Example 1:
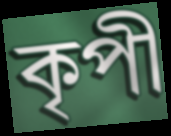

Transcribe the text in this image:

কৃপী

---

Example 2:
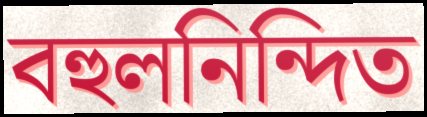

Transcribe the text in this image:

বহুলনিন্দিত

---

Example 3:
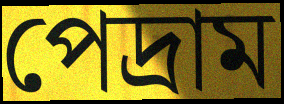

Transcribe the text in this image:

পেদ্রাম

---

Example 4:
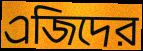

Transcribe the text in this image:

এজিদের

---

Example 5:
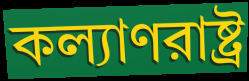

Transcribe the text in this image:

কল্যাণরাষ্ট্র